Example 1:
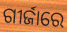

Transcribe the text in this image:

ଗୀର୍ଜାରେ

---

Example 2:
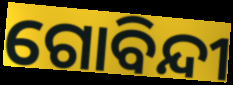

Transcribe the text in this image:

ଗୋବିନ୍ଦୀ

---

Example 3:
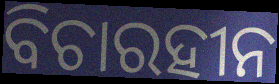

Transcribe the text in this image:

ବିଚାରହୀନ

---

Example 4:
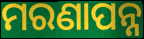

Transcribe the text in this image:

ମରଣାପନ୍ନ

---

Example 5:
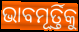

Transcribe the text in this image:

ଭାବମୂର୍ତ୍ତିକୁ